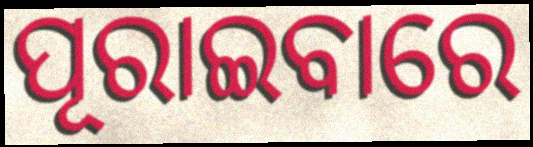
ପୂରାଇବାରେ